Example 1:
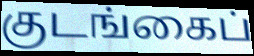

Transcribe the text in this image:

குடங்கைப்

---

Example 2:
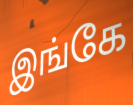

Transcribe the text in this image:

இங்கே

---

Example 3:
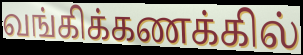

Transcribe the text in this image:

வங்கிக்கணக்கில்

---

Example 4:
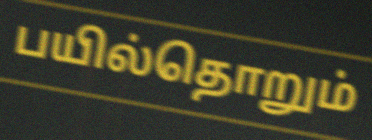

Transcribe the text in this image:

பயில்தொறும்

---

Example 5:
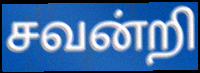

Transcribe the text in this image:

சவன்றி